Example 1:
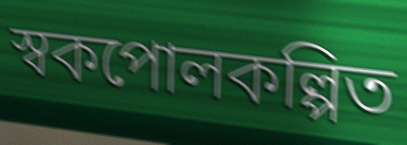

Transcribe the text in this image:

স্বকপোলকল্পিত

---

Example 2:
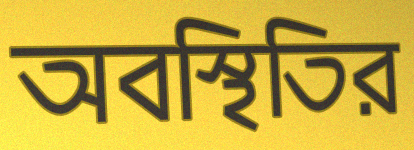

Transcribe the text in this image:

অবস্থিতির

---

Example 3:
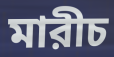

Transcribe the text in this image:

মারীচ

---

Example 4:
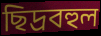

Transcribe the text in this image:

ছিদ্রবহুল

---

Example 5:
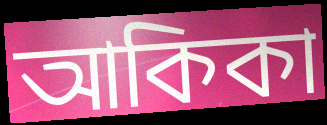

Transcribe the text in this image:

আকিকা